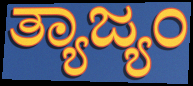
ತ್ಯಾಜ್ಯಂ